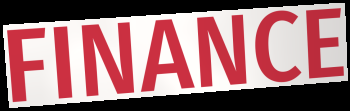
FINANCE